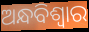
ଅନ୍ଧବିଶ୍ୱାର